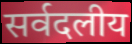
सर्वदलीय